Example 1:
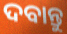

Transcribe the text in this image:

ଦବାନ୍ତୁ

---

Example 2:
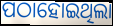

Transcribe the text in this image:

ପଠାହୋଇଥିଲା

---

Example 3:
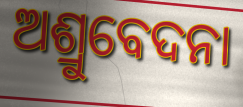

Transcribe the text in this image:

ଅଶ୍ରୁବେଦନା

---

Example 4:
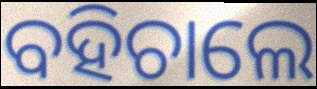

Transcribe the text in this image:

ବହିଚାଲେ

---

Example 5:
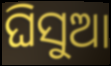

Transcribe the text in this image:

ଘିସୁଆ